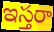
ఇస్తరా